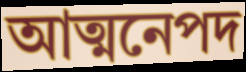
আত্মনেপদ